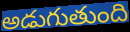
అడుగుతుంది